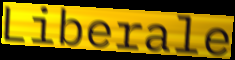
Liberale